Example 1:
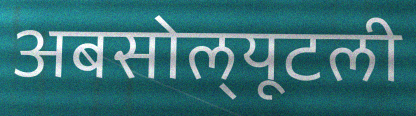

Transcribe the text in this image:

अबसोल्यूटली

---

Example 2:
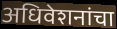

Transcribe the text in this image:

अधिवेशनांचा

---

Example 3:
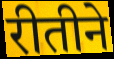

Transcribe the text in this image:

रीतीने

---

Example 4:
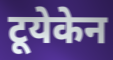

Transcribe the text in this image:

टूयेकेन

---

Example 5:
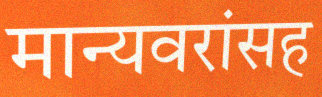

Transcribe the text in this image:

मान्यवरांसह